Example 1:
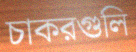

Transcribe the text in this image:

চাকরগুলি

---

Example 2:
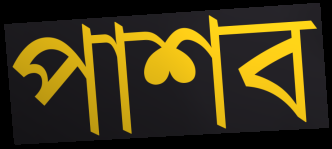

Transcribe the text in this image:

পাশব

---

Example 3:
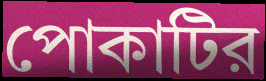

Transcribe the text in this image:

পোকাটির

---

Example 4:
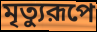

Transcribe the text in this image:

মৃত্যুরূপে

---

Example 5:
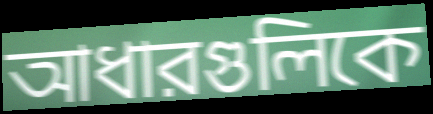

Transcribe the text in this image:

আধারগুলিকে